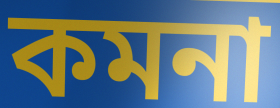
কমনা